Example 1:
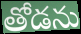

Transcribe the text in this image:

తోడను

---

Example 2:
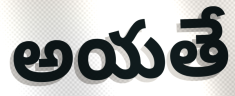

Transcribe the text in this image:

అయతే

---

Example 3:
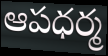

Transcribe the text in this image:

ఆపధర్మ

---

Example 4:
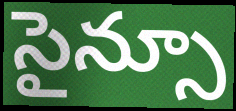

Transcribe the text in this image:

సైన్సూ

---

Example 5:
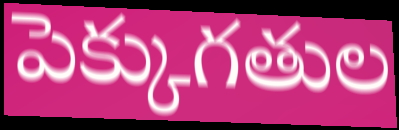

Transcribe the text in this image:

పెక్కుగతుల